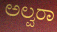
ಅಲ್ವರಾ